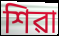
শিৱা